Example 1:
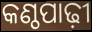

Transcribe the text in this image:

କଣ୍ଠପାଢ଼ୀ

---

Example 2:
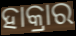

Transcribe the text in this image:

ହାକ୍ରାର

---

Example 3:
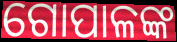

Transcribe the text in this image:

ଗୋପାଳଙ୍କ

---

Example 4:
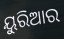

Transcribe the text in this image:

ୟୁରିଆର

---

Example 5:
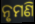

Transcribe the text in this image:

ନୃମଣି